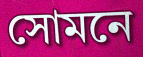
সোমনে